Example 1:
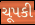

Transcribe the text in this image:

ચૂપકી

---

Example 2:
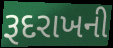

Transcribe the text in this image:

રૂદરાખની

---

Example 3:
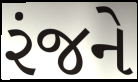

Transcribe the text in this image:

રંજને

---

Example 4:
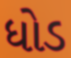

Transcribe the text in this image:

ધોડ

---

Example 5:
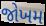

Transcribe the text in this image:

જોખમ